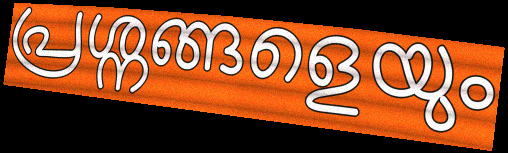
പ്രശ്നങ്ങളെയും